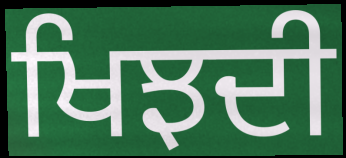
ਖਿਝਦੀ